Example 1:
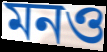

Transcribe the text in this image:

মনও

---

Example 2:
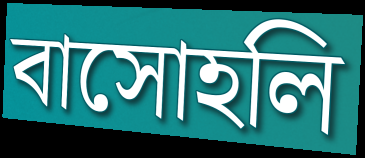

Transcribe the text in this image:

বাসোহলি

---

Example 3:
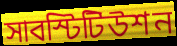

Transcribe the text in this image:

সাবস্টিটিউশন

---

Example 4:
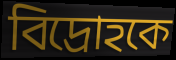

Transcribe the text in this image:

বিদ্রোহকে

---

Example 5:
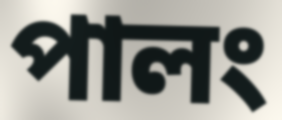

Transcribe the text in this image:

পালং